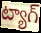
ట్యాగ్